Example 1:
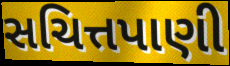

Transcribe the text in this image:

સચિત્તપાણી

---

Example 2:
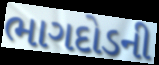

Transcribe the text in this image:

ભાગદોડની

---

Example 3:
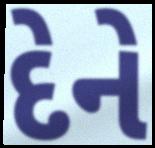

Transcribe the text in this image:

દેને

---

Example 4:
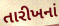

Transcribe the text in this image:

તારીખનાં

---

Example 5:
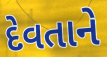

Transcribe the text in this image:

દેવતાને